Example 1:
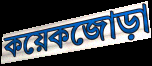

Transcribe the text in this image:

কয়েকজোড়া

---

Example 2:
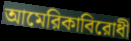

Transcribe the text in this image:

আমেরিকাবিরোধী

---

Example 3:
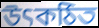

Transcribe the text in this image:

উৎকঠিত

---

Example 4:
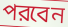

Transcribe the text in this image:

পরবেন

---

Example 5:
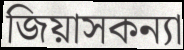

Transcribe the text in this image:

জিয়াসকন্যা